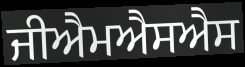
ਜੀਐਮਐਸਐਸ